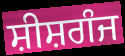
ਸ਼ੀਸ਼ਗੰਜ